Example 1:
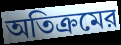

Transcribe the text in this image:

অতিক্রমের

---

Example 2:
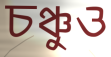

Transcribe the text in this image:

চঞ্চুও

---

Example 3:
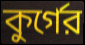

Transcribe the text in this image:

কুর্গের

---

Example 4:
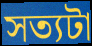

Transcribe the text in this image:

সত্যটা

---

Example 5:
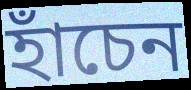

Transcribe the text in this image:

হাঁচেন